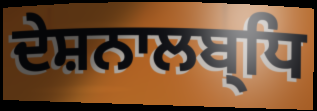
ਦੇਸ਼ਨਾਲਬ੍ਧਿ